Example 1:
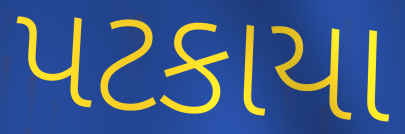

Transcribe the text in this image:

પટકાયા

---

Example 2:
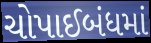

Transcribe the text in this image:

ચોપાઈબંધમાં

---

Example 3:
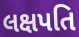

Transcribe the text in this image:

લક્ષપતિ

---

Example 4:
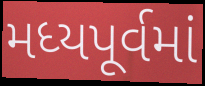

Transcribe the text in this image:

મધ્યપૂર્વમાં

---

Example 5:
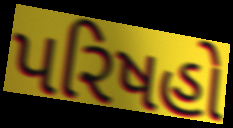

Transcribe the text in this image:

પરિષહો